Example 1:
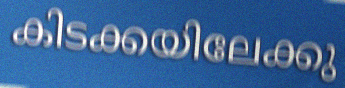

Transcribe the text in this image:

കിടക്കയിലേക്കു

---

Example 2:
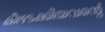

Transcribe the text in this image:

കീഴടക്കിയവന്റെ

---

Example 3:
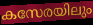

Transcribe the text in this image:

കസേരയിലും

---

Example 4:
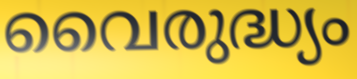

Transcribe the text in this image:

വൈരുദ്ധ്യം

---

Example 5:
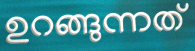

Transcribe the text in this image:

ഉറങ്ങുന്നത്